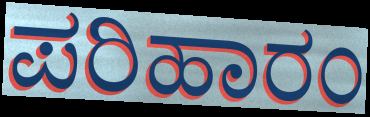
ಪರಿಹಾರಂ